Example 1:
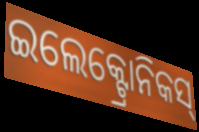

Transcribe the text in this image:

ଇଲେକ୍ଟ୍ରୋନିକସ୍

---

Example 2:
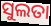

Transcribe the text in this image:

ସୁଲତା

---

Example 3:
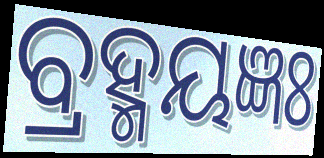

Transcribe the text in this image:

ବ୍ରହ୍ମୟଜ୍ଞଃ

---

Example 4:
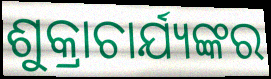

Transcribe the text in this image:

ଶୁକ୍ରାଚାର୍ଯ୍ୟଙ୍କର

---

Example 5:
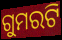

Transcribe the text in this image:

ଗୁମରଟି